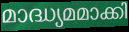
മാദ്ധ്യമമാക്കി